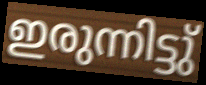
ഇരുന്നിട്ടു്